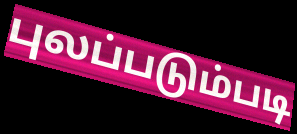
புலப்படும்படி